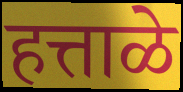
हत्ताळे